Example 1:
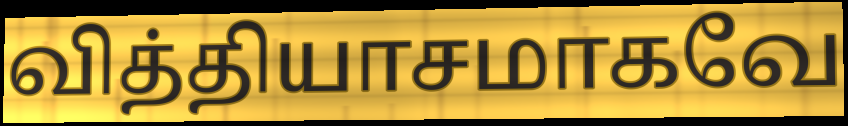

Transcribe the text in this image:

வித்தியாசமாகவே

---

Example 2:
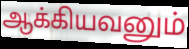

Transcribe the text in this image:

ஆக்கியவனும்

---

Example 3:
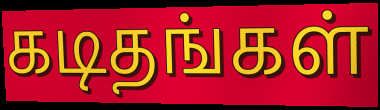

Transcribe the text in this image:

கடிதங்கள்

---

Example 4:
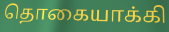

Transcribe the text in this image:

தொகையாக்கி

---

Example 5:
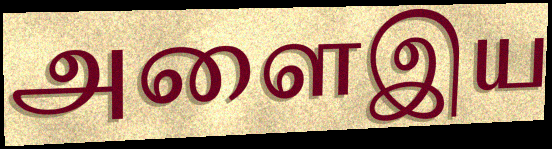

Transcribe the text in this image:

அளைஇய